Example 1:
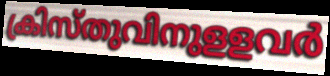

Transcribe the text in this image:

ക്രിസ്തുവിനുളളവർ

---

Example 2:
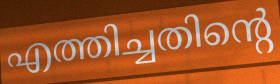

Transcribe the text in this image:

എത്തിച്ചതിന്റെ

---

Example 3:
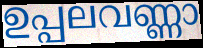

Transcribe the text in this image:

ഉപ്പലവണ്ണാ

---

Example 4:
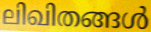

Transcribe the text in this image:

ലിഖിതങ്ങൾ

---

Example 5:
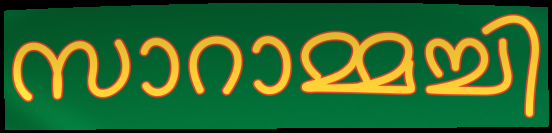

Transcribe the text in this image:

സാറാമ്മച്ചി